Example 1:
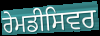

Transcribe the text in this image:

ਰੇਮਡੀਸਿਵਰ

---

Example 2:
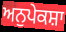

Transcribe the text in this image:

ਅਨੁਪੇਕਸ਼ਾ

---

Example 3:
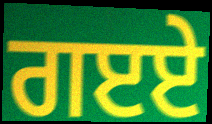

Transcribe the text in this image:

ਗੲਏ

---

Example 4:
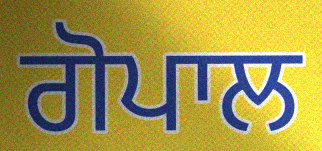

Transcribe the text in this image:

ਗੋਪਾਲ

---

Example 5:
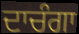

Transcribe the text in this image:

ਦਾਚੰਗਾ